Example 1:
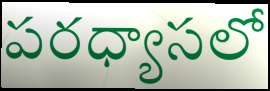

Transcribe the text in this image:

పరధ్యాసలో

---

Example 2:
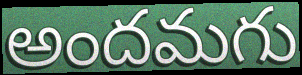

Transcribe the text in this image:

అందమగు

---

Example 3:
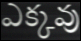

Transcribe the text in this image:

ఎక్కవు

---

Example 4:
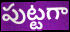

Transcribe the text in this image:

పుట్టగా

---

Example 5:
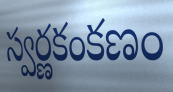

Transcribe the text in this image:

స్వర్ణకంకణం